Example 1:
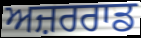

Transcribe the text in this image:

ਅਜ਼ਰਰਾਡ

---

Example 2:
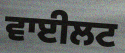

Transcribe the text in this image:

ਵਾਈਲਟ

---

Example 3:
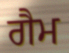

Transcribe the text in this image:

ਗੈਮ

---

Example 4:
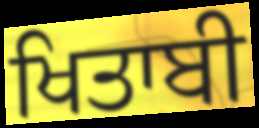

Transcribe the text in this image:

ਖਿਤਾਬੀ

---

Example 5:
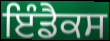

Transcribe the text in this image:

ਇੰਡੈਕਸ